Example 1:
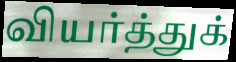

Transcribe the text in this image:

வியர்த்துக்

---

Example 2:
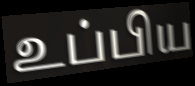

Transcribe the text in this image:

உப்பிய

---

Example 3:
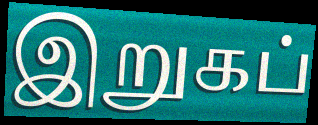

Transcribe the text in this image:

இறுகப்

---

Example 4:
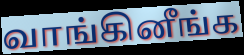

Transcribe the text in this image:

வாங்கினீங்க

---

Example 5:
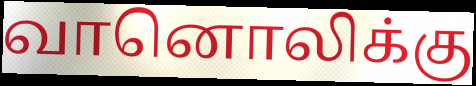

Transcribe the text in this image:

வானொலிக்கு